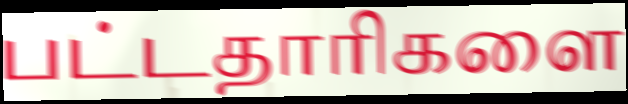
பட்டதாரிகளை